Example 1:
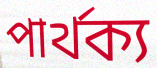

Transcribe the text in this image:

পাৰ্থক্য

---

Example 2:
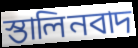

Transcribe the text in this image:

স্তালিনবাদ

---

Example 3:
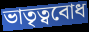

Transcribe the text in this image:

ভাতৃত্ববোধ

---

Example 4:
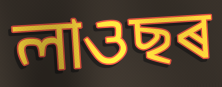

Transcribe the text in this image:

লাওছৰ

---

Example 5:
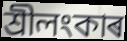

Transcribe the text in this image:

শ্ৰীলংকাৰ